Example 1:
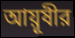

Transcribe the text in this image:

আয়ূষীর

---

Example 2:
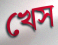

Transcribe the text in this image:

খেস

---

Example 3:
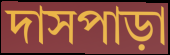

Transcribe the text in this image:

দাসপাড়া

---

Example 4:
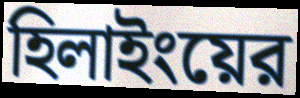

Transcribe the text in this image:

হিলাইংয়ের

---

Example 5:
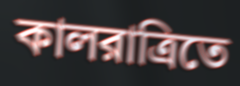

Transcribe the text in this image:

কালরাত্রিতে